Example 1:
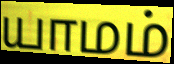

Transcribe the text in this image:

யாமம்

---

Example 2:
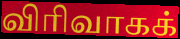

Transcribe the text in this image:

விரிவாகக்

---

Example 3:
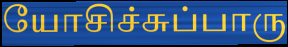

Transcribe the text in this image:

யோசிச்சுப்பாரு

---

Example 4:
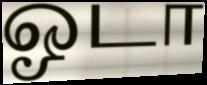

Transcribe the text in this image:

ஓடா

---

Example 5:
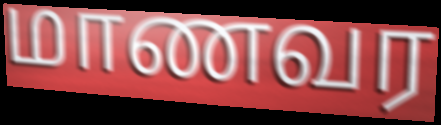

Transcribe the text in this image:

மாணவர